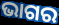
ଭାଗର